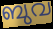
ബുവ